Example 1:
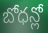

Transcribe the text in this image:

బోధన్లో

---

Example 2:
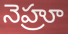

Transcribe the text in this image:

నెహ్రూ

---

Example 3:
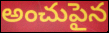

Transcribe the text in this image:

అంచుపైన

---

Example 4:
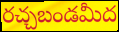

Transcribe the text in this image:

రచ్చబండమీద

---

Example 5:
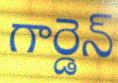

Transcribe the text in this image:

గార్డెన్